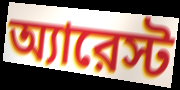
অ্যারেস্ট